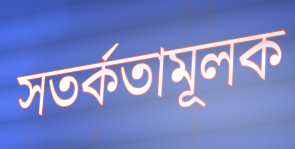
সতর্কতামূলক